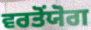
ਵਰਤੋਂਯੋਗ